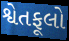
શ્વેતફૂલો